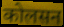
कोलसन